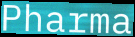
Pharma